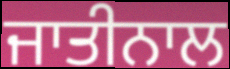
ਜਾਤੀਨਾਲ